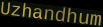
Uzhandhum